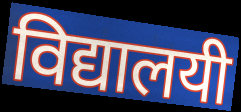
विद्यालयी